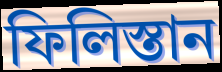
ফিলিস্তান